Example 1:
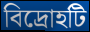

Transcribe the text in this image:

বিদ্রোহটি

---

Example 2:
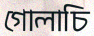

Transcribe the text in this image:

গোলাচি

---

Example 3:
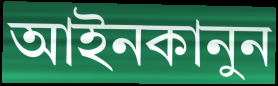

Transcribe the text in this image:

আইনকানুন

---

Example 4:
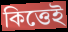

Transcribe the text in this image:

কিত্তেই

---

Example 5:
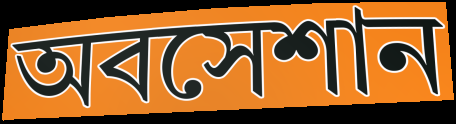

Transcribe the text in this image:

অবসেশান